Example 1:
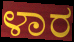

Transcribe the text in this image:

ಳಾರ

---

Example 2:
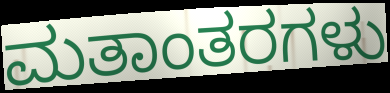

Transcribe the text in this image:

ಮತಾಂತರಗಳು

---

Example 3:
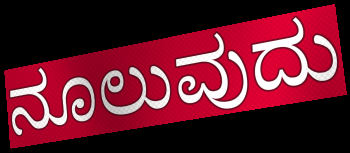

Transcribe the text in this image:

ನೂಲುವುದು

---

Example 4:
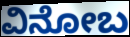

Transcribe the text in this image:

ವಿನೋಬ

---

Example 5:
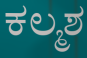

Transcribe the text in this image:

ಕಲ್ಮಶ